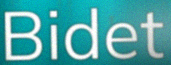
Bidet